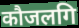
कौजलगि